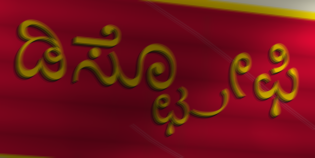
ಡಿಸ್ಟ್ರೋಫಿ